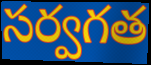
సర్వగత